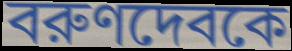
বরুণদেবকে